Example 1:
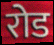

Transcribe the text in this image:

रोड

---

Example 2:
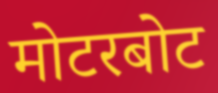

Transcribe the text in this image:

मोटरबोट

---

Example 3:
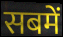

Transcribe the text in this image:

सबमें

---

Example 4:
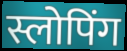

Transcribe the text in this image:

स्लोपिंग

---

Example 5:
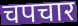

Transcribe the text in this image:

चपचार